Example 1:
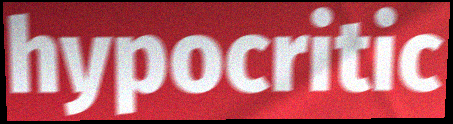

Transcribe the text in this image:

hypocritic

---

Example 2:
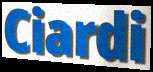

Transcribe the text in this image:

Ciardi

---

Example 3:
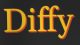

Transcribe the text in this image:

Diffy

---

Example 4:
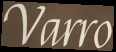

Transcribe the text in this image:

Varro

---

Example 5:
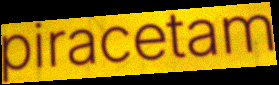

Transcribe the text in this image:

piracetam